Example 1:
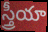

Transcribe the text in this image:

స్త్రీయా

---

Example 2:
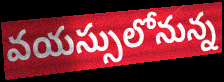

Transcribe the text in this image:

వయస్సులోనున్న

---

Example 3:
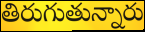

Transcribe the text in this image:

తిరుగుతున్నారు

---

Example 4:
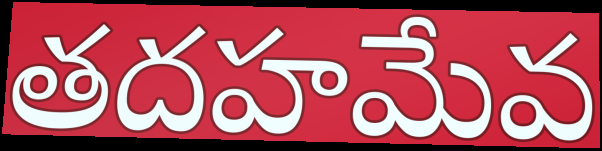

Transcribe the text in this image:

తదహమేవ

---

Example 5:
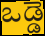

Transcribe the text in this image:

ఒడ్డె